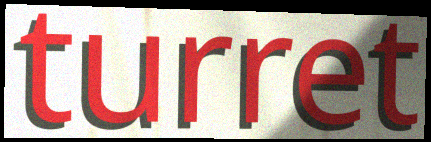
turret